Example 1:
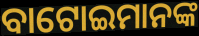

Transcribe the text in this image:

ବାଟୋଇମାନଙ୍କ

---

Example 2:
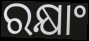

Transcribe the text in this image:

ରକ୍ଷାଂ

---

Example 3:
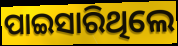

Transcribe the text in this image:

ପାଇସାରିଥିଲେ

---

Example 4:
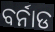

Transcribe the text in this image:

ବର୍ନାଡ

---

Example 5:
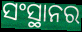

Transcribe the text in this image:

ସଂସ୍ଥାନର